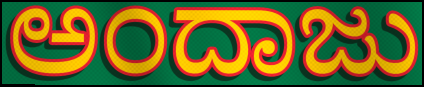
ಅಂದಾಜು